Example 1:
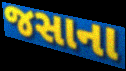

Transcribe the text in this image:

જસાના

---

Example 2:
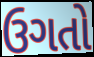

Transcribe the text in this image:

ઉગતો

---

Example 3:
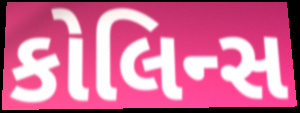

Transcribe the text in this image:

કોલિન્સ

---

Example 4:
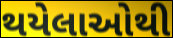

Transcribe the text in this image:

થયેલાઓથી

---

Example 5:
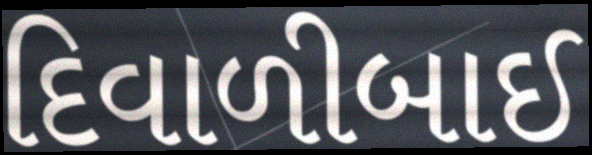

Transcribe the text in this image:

દિવાળીબાઈ